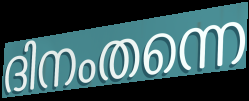
ദിനംതന്നെ